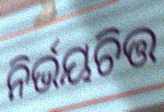
ନିର୍ଭୟଚିତ୍ତ